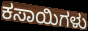
ಕಸಾಯಿಗಳು